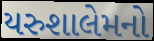
યરુશાલેમનો